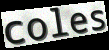
coles